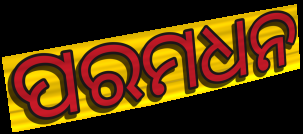
ପରମଧନ